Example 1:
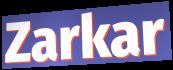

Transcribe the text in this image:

Zarkar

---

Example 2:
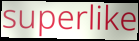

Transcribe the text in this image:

superlike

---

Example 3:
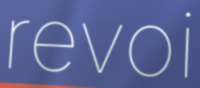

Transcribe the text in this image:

revoi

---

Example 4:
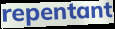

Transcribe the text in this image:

repentant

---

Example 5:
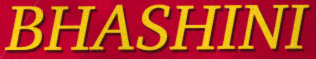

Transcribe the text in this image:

BHASHINI